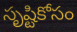
సృష్టికోసం